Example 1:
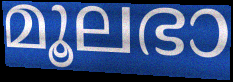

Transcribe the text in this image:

മൂലഭാ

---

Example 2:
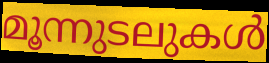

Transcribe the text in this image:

മൂന്നുടലുകൾ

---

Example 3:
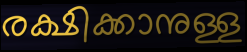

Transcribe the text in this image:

രക്ഷിക്കാനുള്ള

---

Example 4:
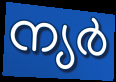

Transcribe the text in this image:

ന്യർ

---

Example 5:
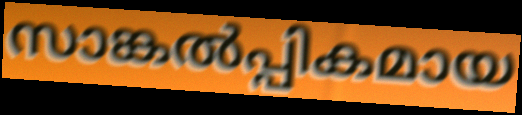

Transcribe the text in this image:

സാങ്കൽപ്പികമായ